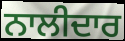
ਨਾਲੀਦਾਰ